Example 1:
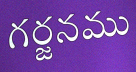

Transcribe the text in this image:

గర్జనము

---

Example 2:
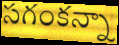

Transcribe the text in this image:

సగంకన్నా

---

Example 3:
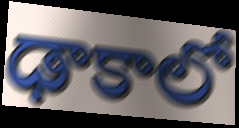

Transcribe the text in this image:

ఢాకాలో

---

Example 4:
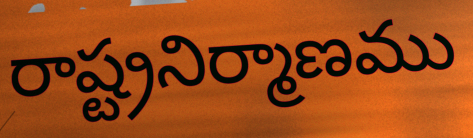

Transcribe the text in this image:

రాష్ట్రనిర్మాణము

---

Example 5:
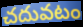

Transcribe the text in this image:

చదువటం